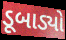
ડૂબાડ્યો